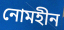
নোমহীন